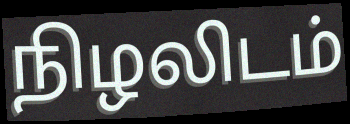
நிழலிடம்